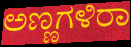
ಅಣ್ಣಗಳಿರಾ